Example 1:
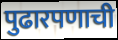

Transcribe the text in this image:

पुढारपणाची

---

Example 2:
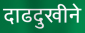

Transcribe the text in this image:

दाढदुखीने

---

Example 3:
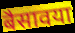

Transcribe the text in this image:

बैसावया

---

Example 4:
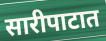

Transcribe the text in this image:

सारीपाटात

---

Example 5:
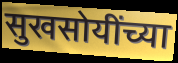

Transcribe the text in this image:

सुखसोयींच्या